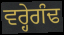
ਵਰ੍ਹੇਗੰਢ